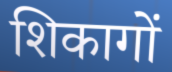
शिकागों